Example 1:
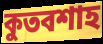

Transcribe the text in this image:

কুতবশাহ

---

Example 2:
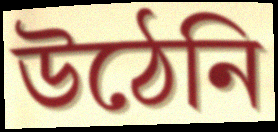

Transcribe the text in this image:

উঠেনি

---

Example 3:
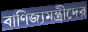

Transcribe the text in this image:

বাণিজ্যমন্ত্রীদের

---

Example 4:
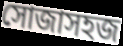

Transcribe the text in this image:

সোজাসহজ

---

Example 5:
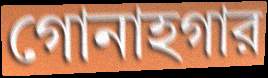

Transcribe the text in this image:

গোনাহগার